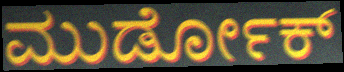
ಮುರ್ಡೋಕ್